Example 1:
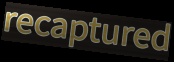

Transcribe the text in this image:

recaptured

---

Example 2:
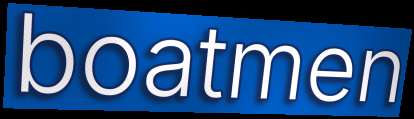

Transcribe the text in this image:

boatmen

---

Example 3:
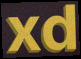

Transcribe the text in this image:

xd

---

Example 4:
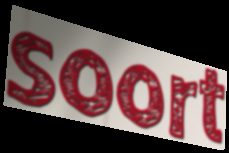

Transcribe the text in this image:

soort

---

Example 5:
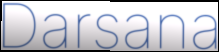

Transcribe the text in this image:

Darsana